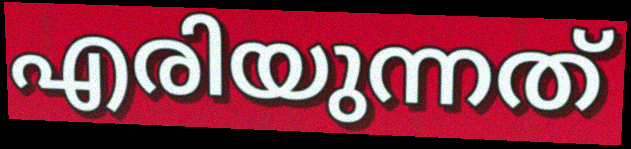
എരിയുന്നത്